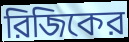
রিজিকের